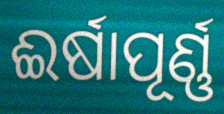
ଈର୍ଷାପୂର୍ଣ୍ଣ